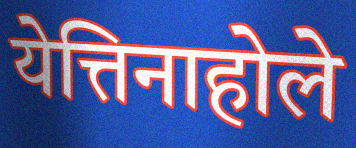
येत्तिनाहोले